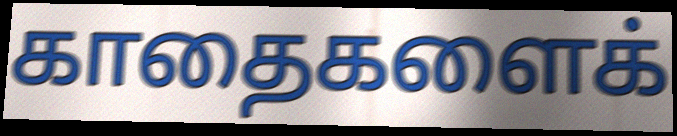
காதைகளைக்